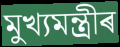
মুখ্যমন্ত্ৰীৰ